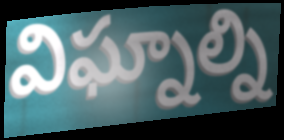
విఘ్నాల్ని